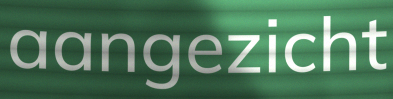
aangezicht